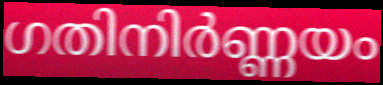
ഗതിനിർണ്ണയം